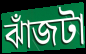
ঝাঁজটা